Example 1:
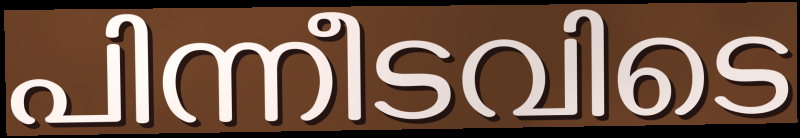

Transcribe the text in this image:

പിന്നീടവിടെ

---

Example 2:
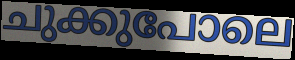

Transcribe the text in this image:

ചുക്കുപോലെ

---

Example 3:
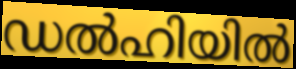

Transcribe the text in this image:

ഡൽഹിയിൽ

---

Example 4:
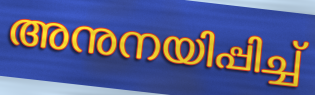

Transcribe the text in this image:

അനുനയിപ്പിച്ച്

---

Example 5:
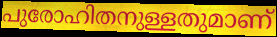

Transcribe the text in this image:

പുരോഹിതനുള്ളതുമാണ്